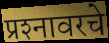
प्रश्नावरचे